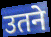
उतने